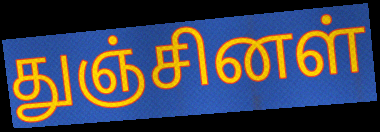
துஞ்சினள்